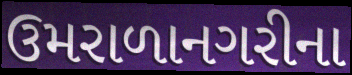
ઉમરાળાનગરીના